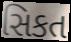
સિકત